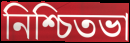
নিশ্চিতভা